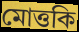
মোত্তকি